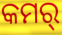
କମର୍